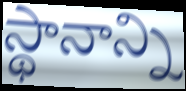
స్థానాన్ని